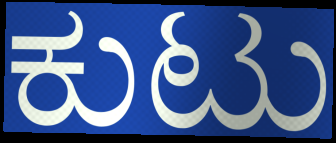
ಕುಟು